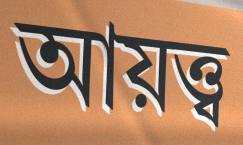
আয়ত্ত্ব